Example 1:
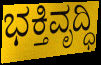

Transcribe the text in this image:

ಭಕ್ತಿವೃದ್ಧಿ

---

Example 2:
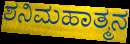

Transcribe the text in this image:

ಶನಿಮಹಾತ್ಮನ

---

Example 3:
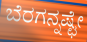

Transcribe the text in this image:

ಬೆರಗನ್ನಷ್ಟೇ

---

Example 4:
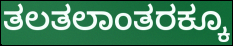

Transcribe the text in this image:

ತಲತಲಾಂತರಕ್ಕೂ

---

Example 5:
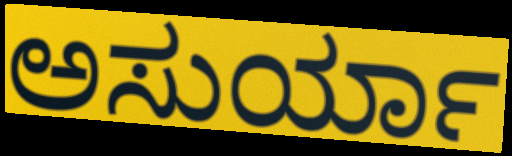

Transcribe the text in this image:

ಅಸುರ್ಯಾ